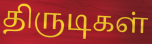
திருடிகள்